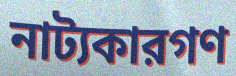
নাট্যকারগণ